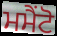
ਮਮੈਂਟੋ